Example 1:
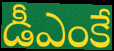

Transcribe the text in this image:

డీఎంకే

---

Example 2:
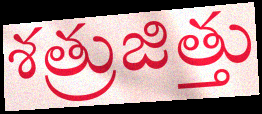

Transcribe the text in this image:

శత్రుజిత్తు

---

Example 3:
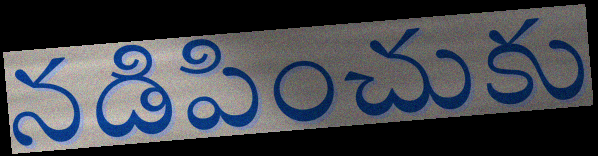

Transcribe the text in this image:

నడిపించుకు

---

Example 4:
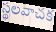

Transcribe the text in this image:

స్థలవాచక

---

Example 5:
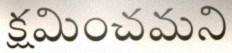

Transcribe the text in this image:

క్షమించమని